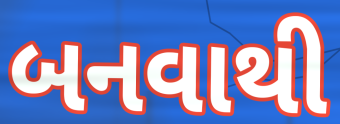
બનવાથી